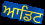
ਆਡਿਟ